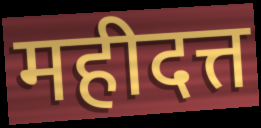
महीदत्त